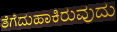
ತೆಗೆದುಹಾಕಿರುವುದು